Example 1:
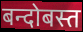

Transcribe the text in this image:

बन्दोबस्त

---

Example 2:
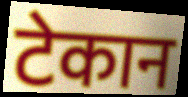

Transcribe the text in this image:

टेकान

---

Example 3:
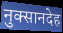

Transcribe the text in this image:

नुक्सानदेह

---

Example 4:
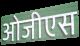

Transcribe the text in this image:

ओजीएस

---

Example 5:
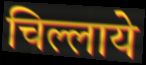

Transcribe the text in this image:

चिल्लाये